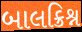
બાલક્રિશ્ન